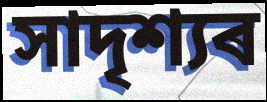
সাদৃশ্যৰ